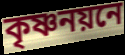
কৃষ্ণনয়নে